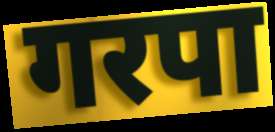
गरपा